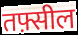
तफ़्सील